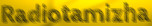
Radiotamizha